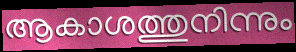
ആകാശത്തുനിന്നും